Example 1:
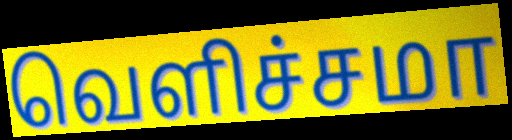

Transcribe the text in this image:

வெளிச்சமா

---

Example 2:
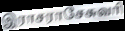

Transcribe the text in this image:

இராசராசேசுவரி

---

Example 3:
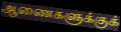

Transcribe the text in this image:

ஆணைகளுக்குக்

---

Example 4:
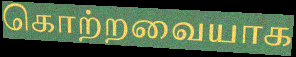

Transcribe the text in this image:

கொற்றவையாக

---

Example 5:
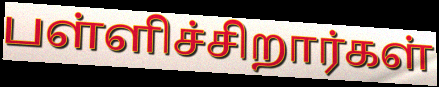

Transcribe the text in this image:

பள்ளிச்சிறார்கள்